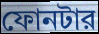
ফোনটার